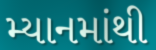
મ્યાનમાંથી